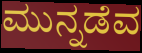
ಮುನ್ನಡೆವ